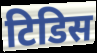
टिडिस